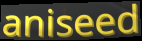
aniseed